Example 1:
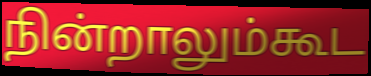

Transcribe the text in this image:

நின்றாலும்கூட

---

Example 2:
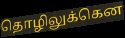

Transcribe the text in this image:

தொழிலுக்கென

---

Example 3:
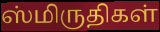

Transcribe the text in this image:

ஸ்மிருதிகள்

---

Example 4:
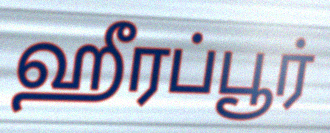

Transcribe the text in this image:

ஹீரப்பூர்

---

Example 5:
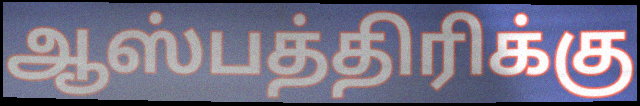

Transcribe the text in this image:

ஆஸ்பத்திரிக்கு